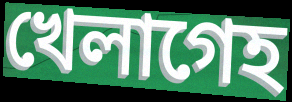
খেলাগেহ